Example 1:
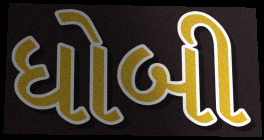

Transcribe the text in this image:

ધોબી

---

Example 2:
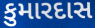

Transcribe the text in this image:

કુમારદાસ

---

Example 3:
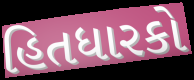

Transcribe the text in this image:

હિતધારકો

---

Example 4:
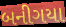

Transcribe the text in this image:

બનીગયા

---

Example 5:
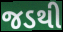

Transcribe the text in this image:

જડથી